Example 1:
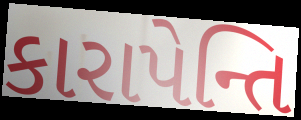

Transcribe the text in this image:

કારાપેન્તિ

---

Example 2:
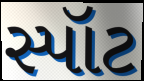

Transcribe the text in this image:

સ્પૉટ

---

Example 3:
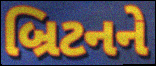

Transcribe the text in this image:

બ્રિટનને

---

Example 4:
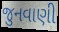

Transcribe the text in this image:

જુનવાણી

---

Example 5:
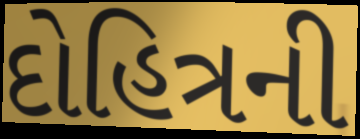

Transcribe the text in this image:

દોહિત્રની